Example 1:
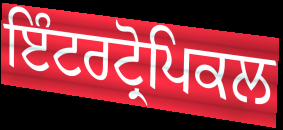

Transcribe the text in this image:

ਇੰਟਰਟ੍ਰੋਪਿਕਲ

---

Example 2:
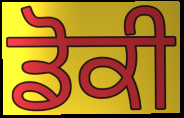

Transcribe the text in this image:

ਡੋਕੀ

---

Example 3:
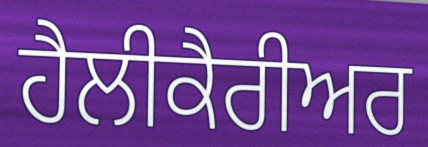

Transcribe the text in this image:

ਹੈਲੀਕੈਰੀਅਰ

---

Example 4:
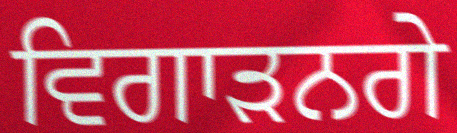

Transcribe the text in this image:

ਵਿਗਾੜਨਗੇ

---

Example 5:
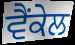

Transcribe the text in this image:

ਵੈਂਕੇਲ